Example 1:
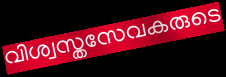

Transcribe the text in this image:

വിശ്വസ്തസേവകരുടെ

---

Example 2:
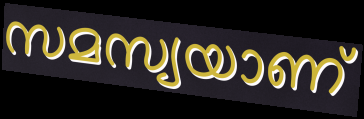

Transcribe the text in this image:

സമസ്യയാണ്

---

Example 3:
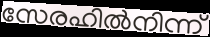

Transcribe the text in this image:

സേരഹിൽനിന്ന്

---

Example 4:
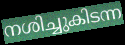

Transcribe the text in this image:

നശിച്ചുകിടന്ന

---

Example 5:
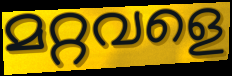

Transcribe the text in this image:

മറ്റവളെ